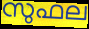
സുഫല